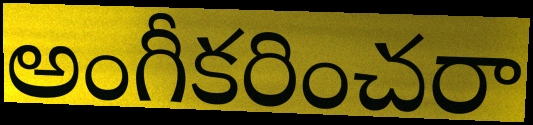
అంగీకరించరా